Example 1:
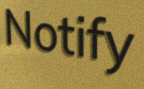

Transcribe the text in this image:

Notify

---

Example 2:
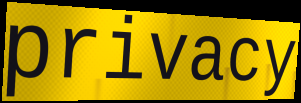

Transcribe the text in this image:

privacy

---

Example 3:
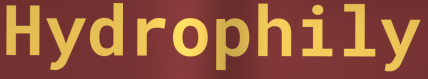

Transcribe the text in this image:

Hydrophily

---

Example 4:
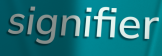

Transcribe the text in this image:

signifier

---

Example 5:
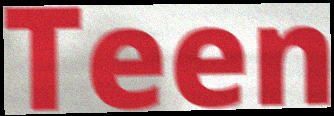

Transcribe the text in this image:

Teen